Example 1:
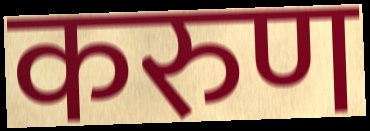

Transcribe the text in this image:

करुण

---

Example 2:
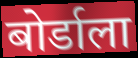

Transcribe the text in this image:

बोर्डाला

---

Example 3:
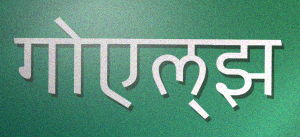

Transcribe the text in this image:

गोएल्झ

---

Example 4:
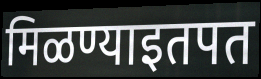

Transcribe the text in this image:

मिळण्याइतपत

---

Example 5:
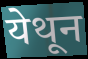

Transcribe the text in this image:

येथून